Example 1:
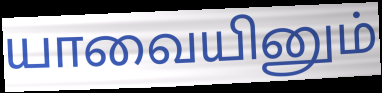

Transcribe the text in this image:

யாவையினும்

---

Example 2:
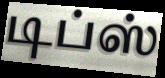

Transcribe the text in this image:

டிப்ஸ்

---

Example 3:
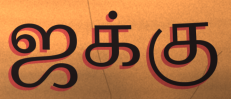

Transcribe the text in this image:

ஜக்கு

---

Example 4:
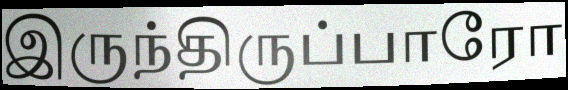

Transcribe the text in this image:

இருந்திருப்பாரோ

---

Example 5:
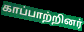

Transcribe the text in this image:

காப்பாற்றினர்